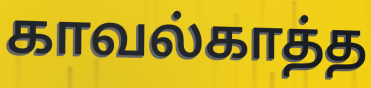
காவல்காத்த